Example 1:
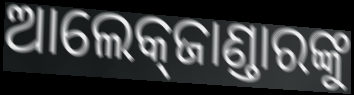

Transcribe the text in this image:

ଆଲେକ୍‌ଜାଣ୍ଡାରଙ୍କୁ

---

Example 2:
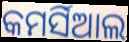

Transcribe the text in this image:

କମର୍ସିଆଲ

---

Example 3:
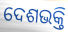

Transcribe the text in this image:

ଦେଶଭକ୍ତି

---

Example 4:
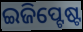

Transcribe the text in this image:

ଇଜିପ୍ଟେଷ୍ଟ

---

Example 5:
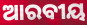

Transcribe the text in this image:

ଆରବୀୟ